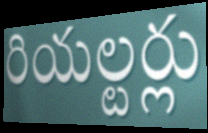
రియల్టర్లు